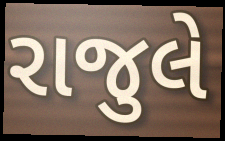
રાજુલે